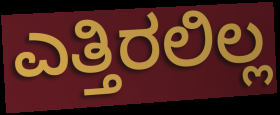
ಎತ್ತಿರಲಿಲ್ಲ